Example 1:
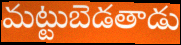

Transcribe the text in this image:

మట్టుబెడతాడు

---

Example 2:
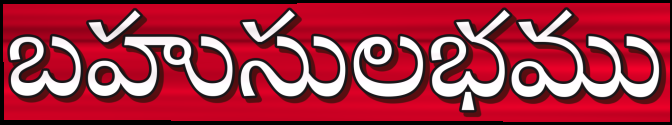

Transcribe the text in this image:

బహుసులభము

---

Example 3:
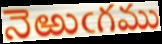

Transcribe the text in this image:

నెఱుఁగము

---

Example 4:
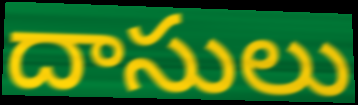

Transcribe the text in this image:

దాసులు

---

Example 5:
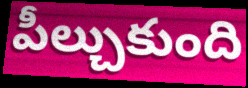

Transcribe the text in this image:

పీల్చుకుంది